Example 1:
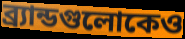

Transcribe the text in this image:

ব্র্যান্ডগুলোকেও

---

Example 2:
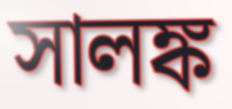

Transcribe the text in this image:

সালঙ্ক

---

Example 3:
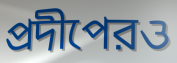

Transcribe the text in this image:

প্রদীপেরও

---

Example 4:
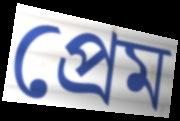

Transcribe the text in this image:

প্রেম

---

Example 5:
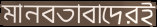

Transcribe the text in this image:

মানবতাবাদেরই